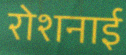
रोशनाई